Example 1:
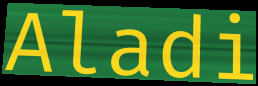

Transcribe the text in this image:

Aladi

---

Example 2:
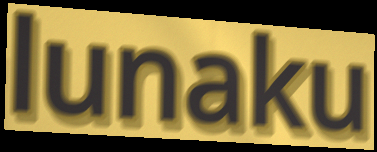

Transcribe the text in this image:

lunaku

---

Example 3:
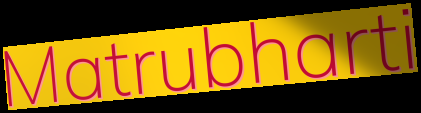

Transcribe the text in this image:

Matrubharti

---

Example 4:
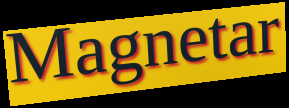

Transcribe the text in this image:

Magnetar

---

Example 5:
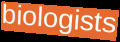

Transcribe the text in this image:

biologists